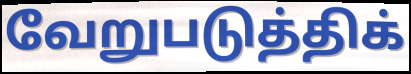
வேறுபடுத்திக்